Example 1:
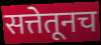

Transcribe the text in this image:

सत्तेतूनच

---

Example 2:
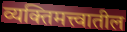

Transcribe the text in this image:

व्यक्तिमत्त्वातील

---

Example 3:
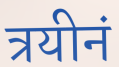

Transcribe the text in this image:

त्रयीनं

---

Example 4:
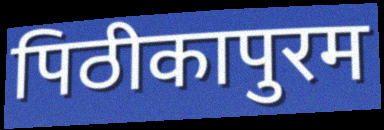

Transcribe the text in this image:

पिठीकापुरम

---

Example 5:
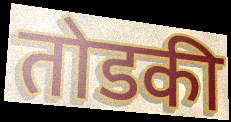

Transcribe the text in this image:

तोडकी